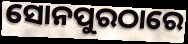
ସୋନପୁରଠାରେ